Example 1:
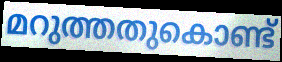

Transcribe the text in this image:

മറുത്തതുകൊണ്ട്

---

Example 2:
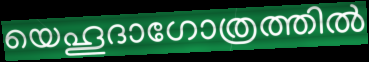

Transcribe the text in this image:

യെഹൂദാഗോത്രത്തിൽ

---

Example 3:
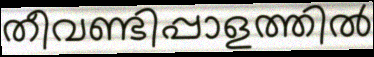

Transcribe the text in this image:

തീവണ്ടിപ്പാളത്തിൽ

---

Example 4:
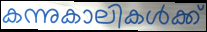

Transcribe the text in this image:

കന്നുകാലികൾക്ക്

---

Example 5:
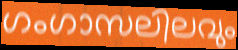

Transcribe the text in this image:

ഗംഗാസലിലവും